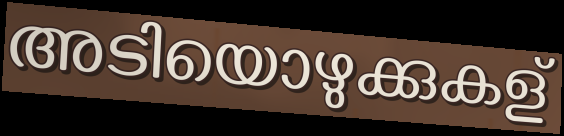
അടിയൊഴുക്കുകള്